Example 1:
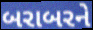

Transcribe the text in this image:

બરાબરને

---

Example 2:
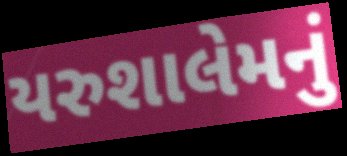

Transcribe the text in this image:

યરુશાલેમનું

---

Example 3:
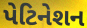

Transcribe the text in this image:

પેટિનેશન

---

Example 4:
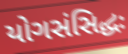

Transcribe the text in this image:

યોગસંસિદ્ધઃ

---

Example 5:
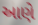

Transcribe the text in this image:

આણે